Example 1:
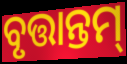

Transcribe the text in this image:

ବୃତ୍ତାନ୍ତମ୍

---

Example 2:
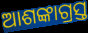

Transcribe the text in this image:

ଆଶଙ୍କାଗ୍ରସ୍ତ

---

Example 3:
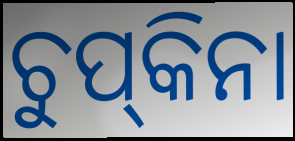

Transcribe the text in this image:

ଚୁପ୍‌କିନା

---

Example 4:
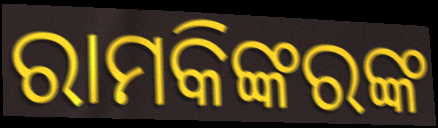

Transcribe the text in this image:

ରାମକିଙ୍କରଙ୍କ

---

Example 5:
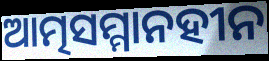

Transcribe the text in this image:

ଆତ୍ମସମ୍ମାନହୀନ